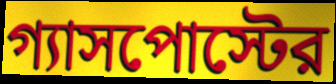
গ্যাসপোস্টের